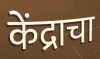
केंद्राचा